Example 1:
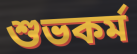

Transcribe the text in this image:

শুভকর্ম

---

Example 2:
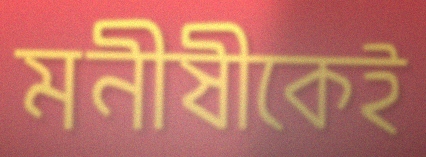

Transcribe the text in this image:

মনীষীকেই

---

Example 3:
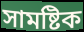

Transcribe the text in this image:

সামষ্টিক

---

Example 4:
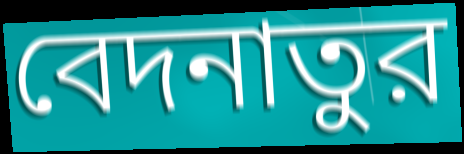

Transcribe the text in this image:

বেদনাতুর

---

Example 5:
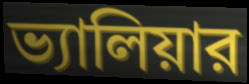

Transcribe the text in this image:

ভ্যালিয়ার